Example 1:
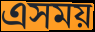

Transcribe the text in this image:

এসময়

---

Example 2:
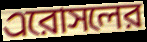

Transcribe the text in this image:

এরোসলের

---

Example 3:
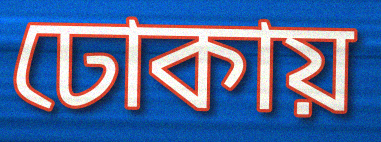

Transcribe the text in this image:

ঢোকায়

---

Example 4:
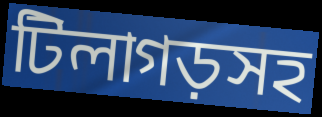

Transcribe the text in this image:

টিলাগড়সহ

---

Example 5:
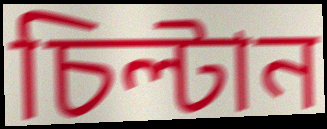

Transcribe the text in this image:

চিল্টান